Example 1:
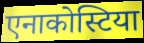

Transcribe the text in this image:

एनाकोस्टिया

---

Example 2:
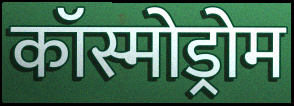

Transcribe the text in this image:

कॉस्मोड्रोम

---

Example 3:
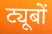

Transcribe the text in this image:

ट्यूबों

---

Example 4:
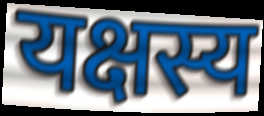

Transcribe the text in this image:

यक्षस्य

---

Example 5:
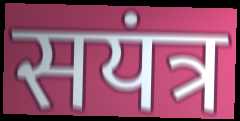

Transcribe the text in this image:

सयंत्र